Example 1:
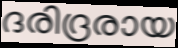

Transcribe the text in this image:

ദരിദ്രരായ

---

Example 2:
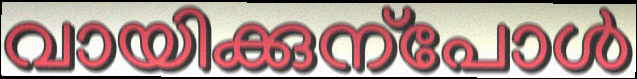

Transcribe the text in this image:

വായിക്കുന്പോൾ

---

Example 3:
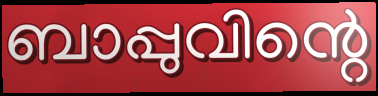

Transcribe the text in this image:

ബാപ്പുവിന്റെ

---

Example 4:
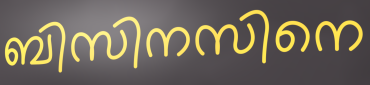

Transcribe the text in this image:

ബിസിനസിനെ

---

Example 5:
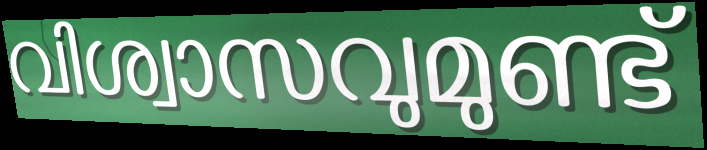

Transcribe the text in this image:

വിശ്വാസവുമുണ്ട്